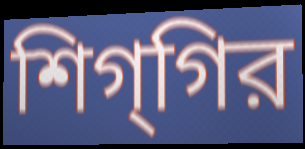
শিগ্‌গির